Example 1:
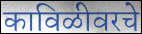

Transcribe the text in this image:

काविळीवरचे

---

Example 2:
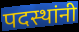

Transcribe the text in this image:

पदस्थांनी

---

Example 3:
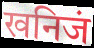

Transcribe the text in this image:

खनिजं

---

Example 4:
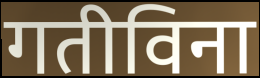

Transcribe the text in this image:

गतीविना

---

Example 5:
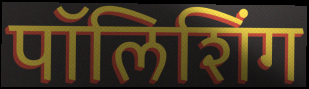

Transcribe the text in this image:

पॉलिशिंग